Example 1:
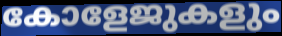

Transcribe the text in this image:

കോളേജുകളും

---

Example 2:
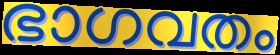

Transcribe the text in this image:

ഭാഗവതം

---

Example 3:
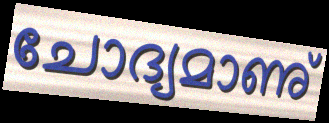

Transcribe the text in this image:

ചോദ്യമാണു്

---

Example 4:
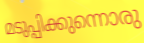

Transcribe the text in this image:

മടുപ്പിക്കുന്നൊരു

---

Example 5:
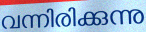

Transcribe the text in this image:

വന്നിരിക്കുന്നു